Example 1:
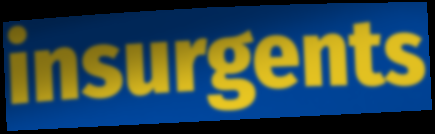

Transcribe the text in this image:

insurgents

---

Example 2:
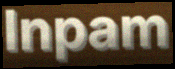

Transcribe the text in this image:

Inpam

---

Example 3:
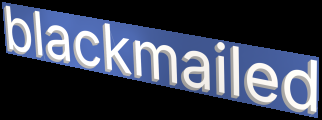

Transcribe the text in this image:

blackmailed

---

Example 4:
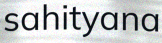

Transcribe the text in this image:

sahityana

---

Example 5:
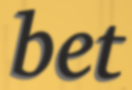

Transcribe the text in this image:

bet